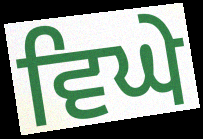
ਵਿਘੇ